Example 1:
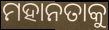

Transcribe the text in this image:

ମହାନତାକୁ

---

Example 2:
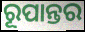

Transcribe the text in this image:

ରୂପାନ୍ତର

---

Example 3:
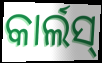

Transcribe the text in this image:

କାର୍ଲସ୍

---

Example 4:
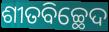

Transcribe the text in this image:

ଶୀତବିଚ୍ଛେଦ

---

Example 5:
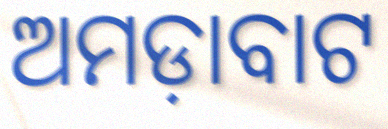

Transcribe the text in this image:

ଅମଡ଼ାବାଟ